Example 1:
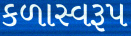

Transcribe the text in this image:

કળાસ્વરૂપ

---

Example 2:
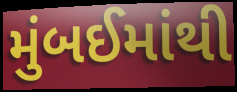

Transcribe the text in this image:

મુંબઈમાંથી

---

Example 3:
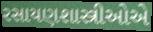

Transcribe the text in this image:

રસાયણશાસ્ત્રીઓએ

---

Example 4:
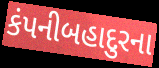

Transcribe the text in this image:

કંપનીબહાદુરના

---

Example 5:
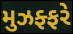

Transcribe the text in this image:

મુઝફ્ફરે